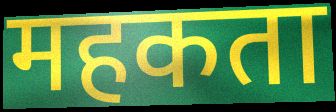
महकता